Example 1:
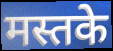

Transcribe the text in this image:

मस्तके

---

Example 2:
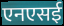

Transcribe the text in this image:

एनएसई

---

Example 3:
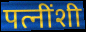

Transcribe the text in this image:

पत्नींशी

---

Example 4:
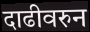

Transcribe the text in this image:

दाढीवरुन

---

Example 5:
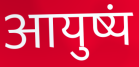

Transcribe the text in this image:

आयुष्यं